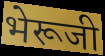
भेरूजी